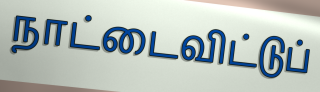
நாட்டைவிட்டுப்